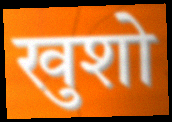
खुशो